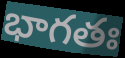
భాగతః